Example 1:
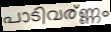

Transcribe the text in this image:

പാടിവര്ണ്ണം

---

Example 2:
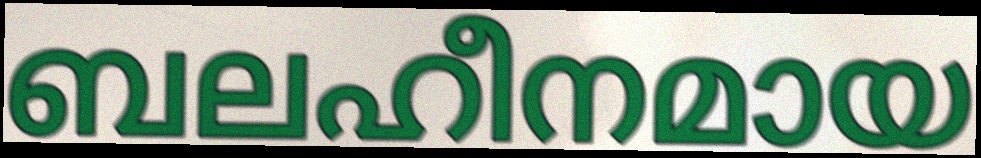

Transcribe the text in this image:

ബലഹീനമായ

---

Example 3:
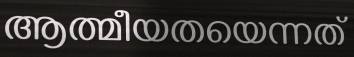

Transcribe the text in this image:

ആത്മീയതയെന്നത്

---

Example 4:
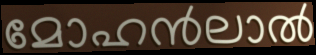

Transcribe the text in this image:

മോഹൻലാൽ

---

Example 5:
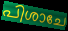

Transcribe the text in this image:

പിശാചേ